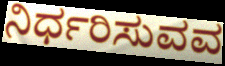
ನಿರ್ಧರಿಸುವವ